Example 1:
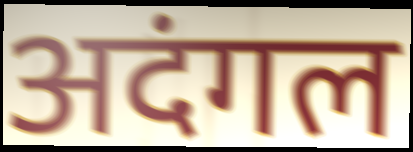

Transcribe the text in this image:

अदंगल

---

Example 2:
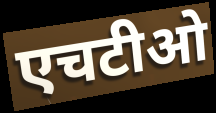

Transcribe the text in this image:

एचटीओ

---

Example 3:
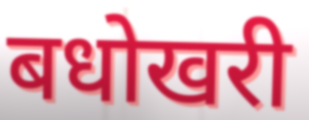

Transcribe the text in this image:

बधोखरी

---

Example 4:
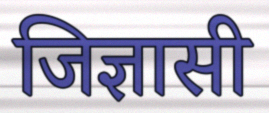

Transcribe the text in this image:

जिज्ञासी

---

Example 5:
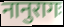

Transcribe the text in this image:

नानुरागः